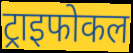
ट्राइफोकल